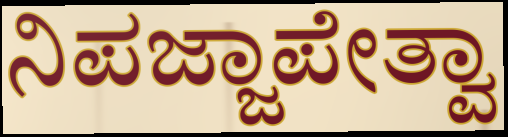
ನಿಪಜ್ಜಾಪೇತ್ವಾ